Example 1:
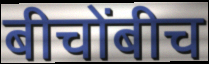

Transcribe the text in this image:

बीचोंबीच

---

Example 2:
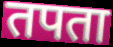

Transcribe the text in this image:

तपता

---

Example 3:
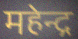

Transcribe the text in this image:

महेन्‍द्र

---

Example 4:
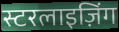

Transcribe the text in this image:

स्टरलाइज़िंग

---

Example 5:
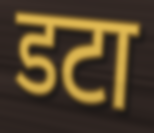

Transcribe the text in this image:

डटा